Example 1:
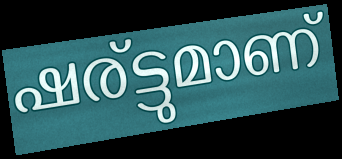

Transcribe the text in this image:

ഷര്ട്ടുമാണ്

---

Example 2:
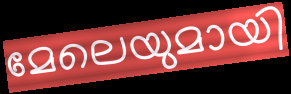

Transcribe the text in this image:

മേലെയുമായി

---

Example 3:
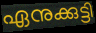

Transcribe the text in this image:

ഏനുക്കുട്ടി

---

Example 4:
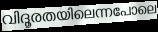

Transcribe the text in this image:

വിദൂരതയിലെന്നപോലെ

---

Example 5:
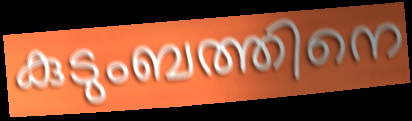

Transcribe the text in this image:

കുടുംബത്തിനെ